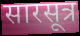
सारसूत्र